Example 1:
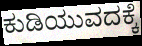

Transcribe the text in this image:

ಕುಡಿಯುವದಕ್ಕೆ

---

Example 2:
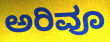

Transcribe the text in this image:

ಅರಿವೂ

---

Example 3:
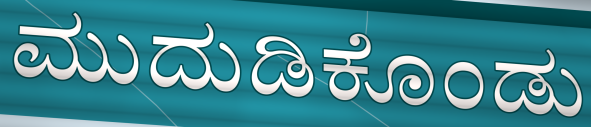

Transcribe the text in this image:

ಮುದುಡಿಕೊಂಡು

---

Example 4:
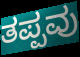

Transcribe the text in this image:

ತಪ್ಪವು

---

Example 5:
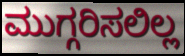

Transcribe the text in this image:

ಮುಗ್ಗರಿಸಲಿಲ್ಲ